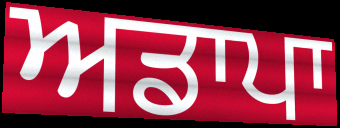
ਅਡਾਪਾ